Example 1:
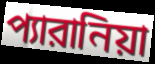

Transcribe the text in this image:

প্যারানিয়া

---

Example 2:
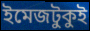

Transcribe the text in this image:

ইমেজটুকুই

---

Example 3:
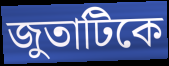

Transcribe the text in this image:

জুতাটিকে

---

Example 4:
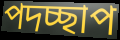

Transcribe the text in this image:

পদচ্ছাপ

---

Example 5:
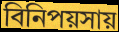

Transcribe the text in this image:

বিনিপয়সায়